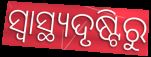
ସ୍ୱାସ୍ଥ୍ୟଦୃଷ୍ଟିରୁ